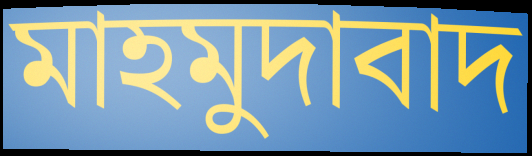
মাহমুদাবাদ